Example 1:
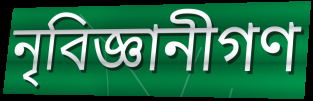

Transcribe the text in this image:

নৃবিজ্ঞানীগণ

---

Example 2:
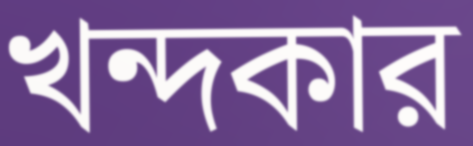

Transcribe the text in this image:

খন্দকার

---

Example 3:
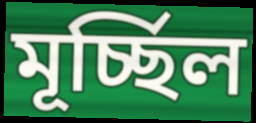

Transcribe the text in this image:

মূর্চ্ছিল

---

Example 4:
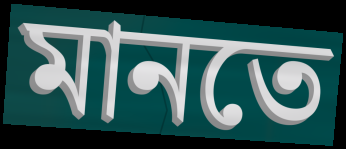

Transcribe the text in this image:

মানতে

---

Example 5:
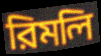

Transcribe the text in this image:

রিমলি